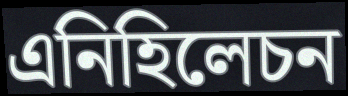
এনিহিলেচন